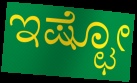
ಇಷ್ಟೋ